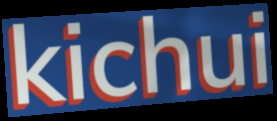
kichui